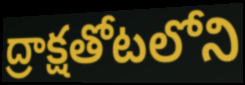
ద్రాక్షతోటలోని